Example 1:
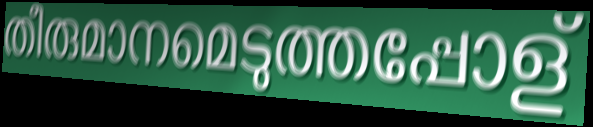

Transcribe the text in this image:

തീരുമാനമെടുത്തപ്പോള്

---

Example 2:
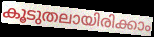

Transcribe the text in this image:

കൂടുതലായിരിക്കാം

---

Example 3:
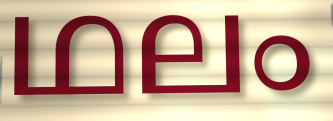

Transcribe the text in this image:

ഥലം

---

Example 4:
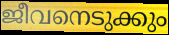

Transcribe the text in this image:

ജീവനെടുക്കും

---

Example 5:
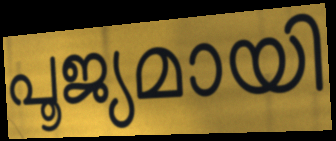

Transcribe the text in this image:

പൂജ്യമായി